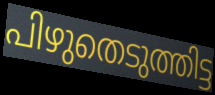
പിഴുതെടുത്തിട്ട